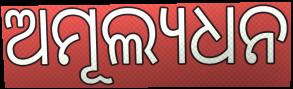
ଅମୂଲ୍ୟଧନ